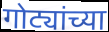
गोट्यांच्या